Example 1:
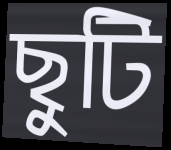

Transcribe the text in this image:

ছুটি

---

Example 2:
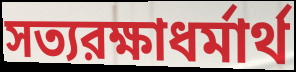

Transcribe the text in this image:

সত্যরক্ষাধর্মার্থ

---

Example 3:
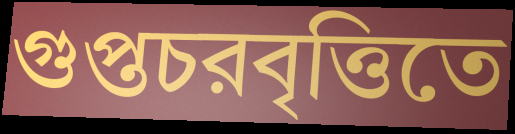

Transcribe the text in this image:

গুপ্তচরবৃত্তিতে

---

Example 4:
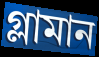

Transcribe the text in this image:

গ্লামান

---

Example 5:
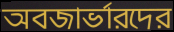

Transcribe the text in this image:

অবজার্ভারদের